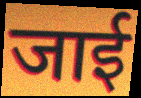
जाई